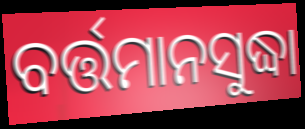
ବର୍ତ୍ତମାନସୁଦ୍ଧା